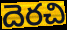
దెరచి